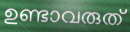
ഉണ്ടാവരുത്